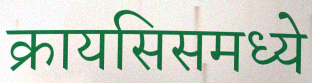
क्रायसिसमध्ये